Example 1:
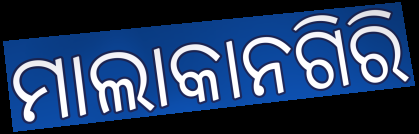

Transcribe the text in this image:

ମାଲାକାନଗିରି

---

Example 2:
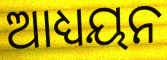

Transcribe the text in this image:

ଆଧ୍ୟୟନ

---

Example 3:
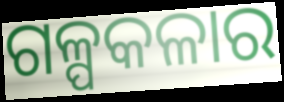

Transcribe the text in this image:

ଗଳ୍ପକଳାର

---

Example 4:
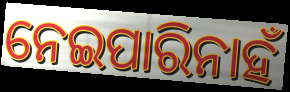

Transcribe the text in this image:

ନେଇପାରିନାହଁ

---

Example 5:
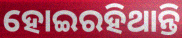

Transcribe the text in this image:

ହୋଇରହିଥାନ୍ତି